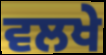
ਵਲਖੇ